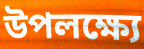
উপলক্ষ্যে